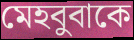
মেহবুবাকে